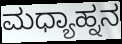
ಮಧ್ಯಾಹ್ನನ